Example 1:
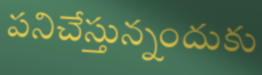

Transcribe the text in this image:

పనిచేస్తున్నందుకు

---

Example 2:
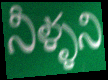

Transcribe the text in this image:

నీళ్ళని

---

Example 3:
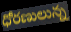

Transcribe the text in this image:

ధోరణులున్న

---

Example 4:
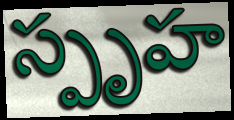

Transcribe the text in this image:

స్పృహ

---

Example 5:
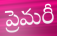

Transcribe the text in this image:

ప్రెమరీ